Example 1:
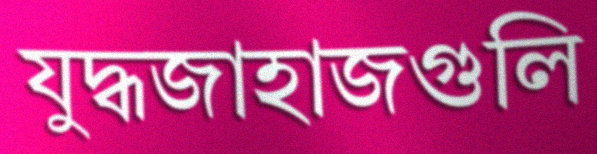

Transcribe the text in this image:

যুদ্ধজাহাজগুলি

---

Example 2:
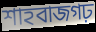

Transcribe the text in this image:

শাহবাজগঢ়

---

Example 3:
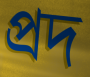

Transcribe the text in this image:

প্রদ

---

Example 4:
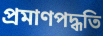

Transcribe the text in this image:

প্রমাণপদ্ধতি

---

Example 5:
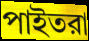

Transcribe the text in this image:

পাইতরা